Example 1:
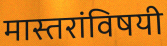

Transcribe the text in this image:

मास्तरांविषयी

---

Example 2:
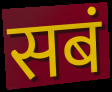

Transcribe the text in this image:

सबं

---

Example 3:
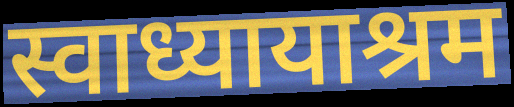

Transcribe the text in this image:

स्वाध्यायाश्रम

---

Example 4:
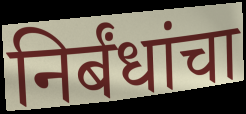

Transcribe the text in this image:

निर्बंधांचा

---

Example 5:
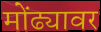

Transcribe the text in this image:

मोंढ्यावर